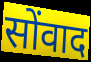
सोंवाद